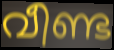
വീണ്ട